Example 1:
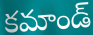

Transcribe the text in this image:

కమాండ్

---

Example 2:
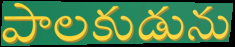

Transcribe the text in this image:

పాలకుడును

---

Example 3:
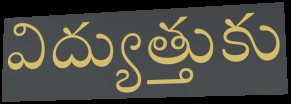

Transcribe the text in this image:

విద్యుత్తుకు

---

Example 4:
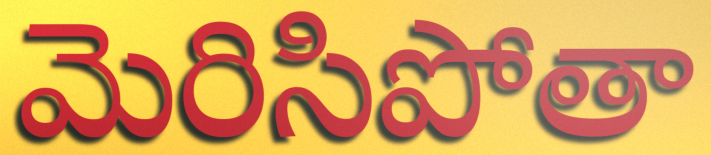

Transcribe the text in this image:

మెరిసిపోతా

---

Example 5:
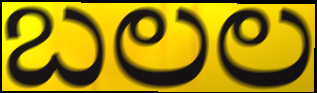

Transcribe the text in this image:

బలల